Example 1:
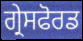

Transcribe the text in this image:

ਗ੍ਰੇਸਫੋਰਡ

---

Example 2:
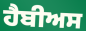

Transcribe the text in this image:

ਹੈਬੀਅਸ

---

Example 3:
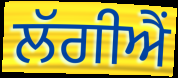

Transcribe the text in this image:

ਲੱਗੀਐਂ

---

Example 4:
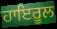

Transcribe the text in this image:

ਹਾਇਰੂਲ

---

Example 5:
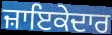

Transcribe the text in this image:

ਜ਼ਾਇਕੇਦਾਰ